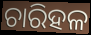
ଚାରିହଳ